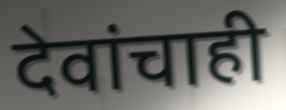
देवांचाही